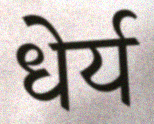
धेर्य